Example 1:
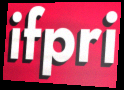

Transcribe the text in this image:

ifpri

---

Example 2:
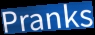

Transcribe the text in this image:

Pranks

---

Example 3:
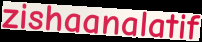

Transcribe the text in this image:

zishaanalatif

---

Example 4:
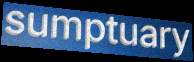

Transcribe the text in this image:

sumptuary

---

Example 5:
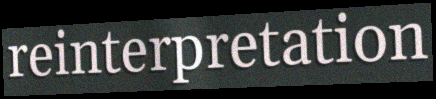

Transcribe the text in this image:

reinterpretation